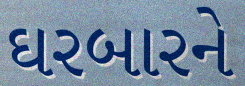
ઘરબારને